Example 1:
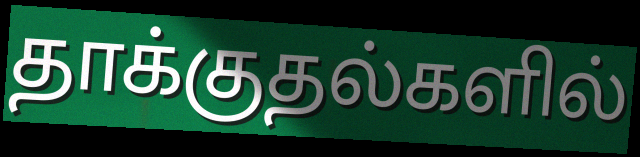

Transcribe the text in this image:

தாக்குதல்களில்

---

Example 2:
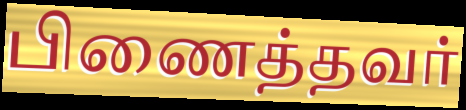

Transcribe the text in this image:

பிணைத்தவர்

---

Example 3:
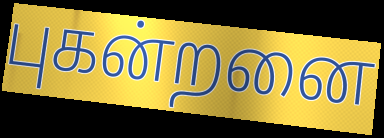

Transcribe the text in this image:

புகன்றனை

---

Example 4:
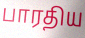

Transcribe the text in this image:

பாரதிய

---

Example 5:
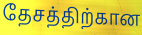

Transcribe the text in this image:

தேசத்திற்கான